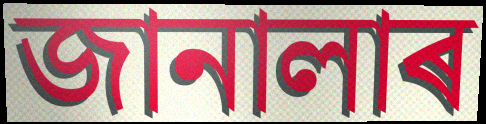
জানালাৰ